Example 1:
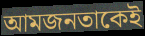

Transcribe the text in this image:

আমজনতাকেই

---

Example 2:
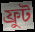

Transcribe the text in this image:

ফ্রুট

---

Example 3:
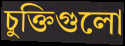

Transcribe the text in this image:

চুক্তিগুলো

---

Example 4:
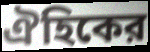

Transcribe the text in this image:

ঐহিকের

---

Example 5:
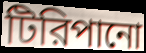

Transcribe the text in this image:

টিরিপানো